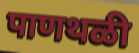
पाणथळी